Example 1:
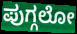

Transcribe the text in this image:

ಪುಗ್ಗಲೋ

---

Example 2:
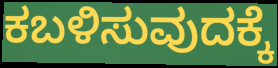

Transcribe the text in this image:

ಕಬಳಿಸುವುದಕ್ಕೆ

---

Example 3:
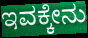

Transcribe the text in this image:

ಇವಕ್ಕೇನು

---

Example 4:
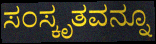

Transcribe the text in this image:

ಸಂಸ್ಕೃತವನ್ನೂ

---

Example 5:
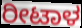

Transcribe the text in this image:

ರೀಟಾಳ